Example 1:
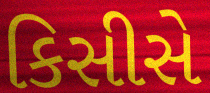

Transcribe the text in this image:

કિસીસે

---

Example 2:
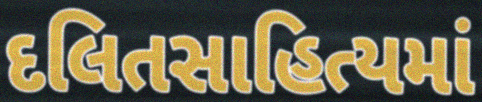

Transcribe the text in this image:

દલિતસાહિત્યમાં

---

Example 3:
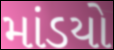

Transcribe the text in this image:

માંડયો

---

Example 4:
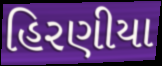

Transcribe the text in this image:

હિરણીયા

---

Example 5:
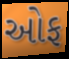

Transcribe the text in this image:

ઓફ